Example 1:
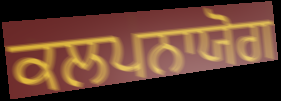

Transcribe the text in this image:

ਕਲਪਨਾਯੋਗ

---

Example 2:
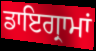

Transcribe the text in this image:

ਡਾਇਗ੍ਰਾਮਾਂ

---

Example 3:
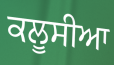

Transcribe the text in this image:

ਕਲੂਸੀਆ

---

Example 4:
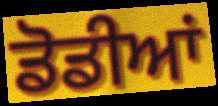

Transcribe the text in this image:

ਡੋਡੀਆਂ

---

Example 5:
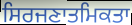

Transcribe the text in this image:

ਸਿਰਜਣਾਤਮਿਕਤਾ